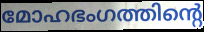
മോഹഭംഗത്തിന്റെ